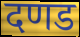
दणड